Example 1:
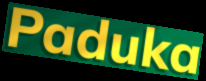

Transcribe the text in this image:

Paduka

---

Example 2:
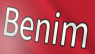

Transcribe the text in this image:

Benim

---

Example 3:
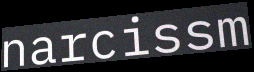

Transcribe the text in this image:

narcissm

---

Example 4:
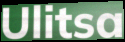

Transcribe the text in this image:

Ulitsa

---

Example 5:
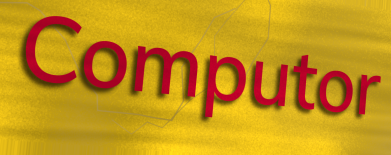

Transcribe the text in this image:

Computor